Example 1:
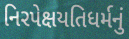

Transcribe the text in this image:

નિરપેક્ષયતિધર્મનું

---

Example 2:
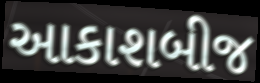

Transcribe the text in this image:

આકાશબીજ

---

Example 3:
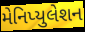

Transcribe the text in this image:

મેનિપ્યુલેશન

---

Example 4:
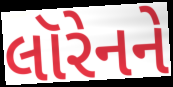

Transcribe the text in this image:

લૉરેનને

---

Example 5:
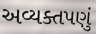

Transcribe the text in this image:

અવ્યક્તપણું